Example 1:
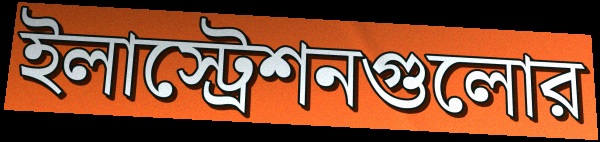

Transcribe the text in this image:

ইলাস্ট্রেশনগুলোর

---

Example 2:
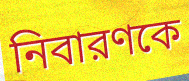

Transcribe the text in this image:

নিবারণকে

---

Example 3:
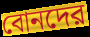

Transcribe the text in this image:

বোনদের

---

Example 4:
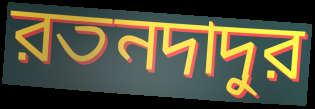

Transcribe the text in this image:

রতনদাদুর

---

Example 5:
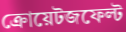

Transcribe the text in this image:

ক্রোয়েটজফেল্ট